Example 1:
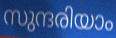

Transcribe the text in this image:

സുന്ദരിയാം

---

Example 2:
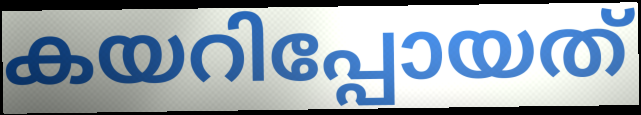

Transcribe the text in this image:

കയറിപ്പോയത്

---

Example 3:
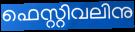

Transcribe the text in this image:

ഫെസ്റ്റിവലിനു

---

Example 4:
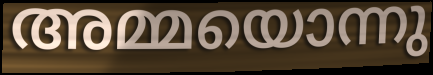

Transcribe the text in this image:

അമ്മയൊന്നു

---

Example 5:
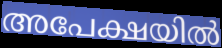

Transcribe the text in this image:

അപേക്ഷയിൽ